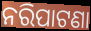
ନରିପାଟଣା